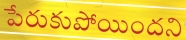
పేరుకుపోయిందని